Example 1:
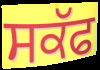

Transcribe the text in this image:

ਸਕੱਫ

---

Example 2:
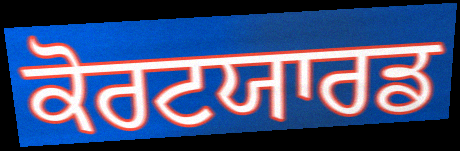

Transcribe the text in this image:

ਕੋਰਟਯਾਰਡ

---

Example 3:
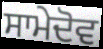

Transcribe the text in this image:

ਸਾਮੇਦੋਵ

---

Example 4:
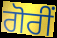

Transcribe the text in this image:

ਗੋਰੀਂ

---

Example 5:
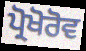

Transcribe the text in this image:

ਪ੍ਰੋਖੋਰੋਵ